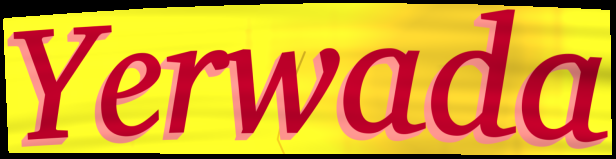
Yerwada